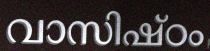
വാസിഷ്ഠം